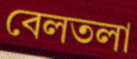
বেলতলা